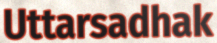
Uttarsadhak